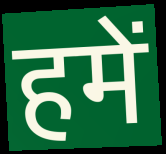
हमें